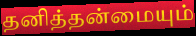
தனித்தன்மையும்